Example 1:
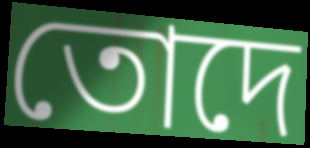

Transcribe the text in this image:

তোদে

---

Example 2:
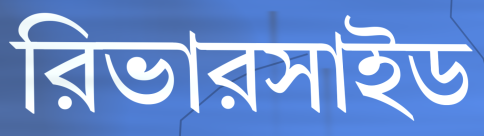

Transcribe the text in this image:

রিভারসাইড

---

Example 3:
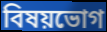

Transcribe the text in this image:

বিষয়ভোগ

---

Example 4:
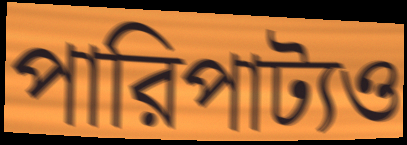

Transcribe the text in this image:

পারিপাট্যও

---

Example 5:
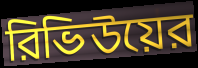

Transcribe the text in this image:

রিভিউয়ের